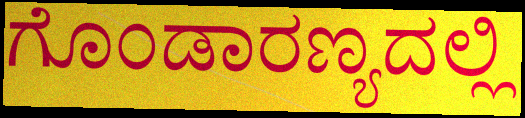
ಗೊಂಡಾರಣ್ಯದಲ್ಲಿ